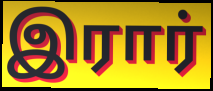
இரார்